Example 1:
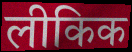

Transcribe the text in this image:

लीकिक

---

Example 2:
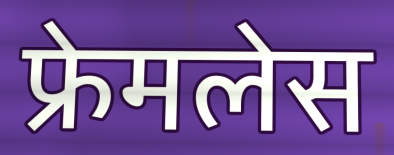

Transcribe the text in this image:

फ्रेमलेस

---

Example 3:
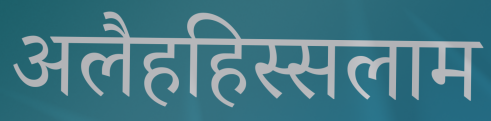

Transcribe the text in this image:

अलैहहिस्सलाम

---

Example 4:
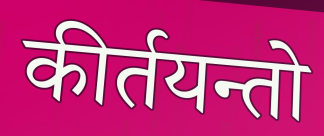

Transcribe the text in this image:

कीर्तयन्तो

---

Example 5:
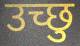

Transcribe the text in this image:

उच्छु